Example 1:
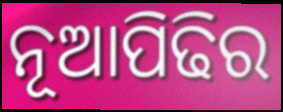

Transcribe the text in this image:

ନୂଆପିଢିର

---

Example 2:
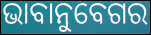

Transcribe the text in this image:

ଭାବାନୁବେଗର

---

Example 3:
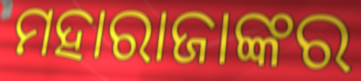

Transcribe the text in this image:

ମହାରାଜାଙ୍କର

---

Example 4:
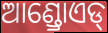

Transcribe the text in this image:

ଆଣ୍ଡ୍ରୋଏଡ୍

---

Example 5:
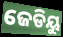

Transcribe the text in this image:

ଜେଡିୟୁ